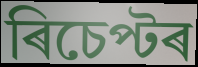
ৰিচেপ্টৰ